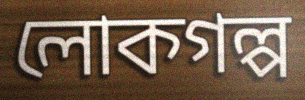
লোকগল্প